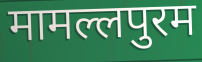
मामल्लपुरम